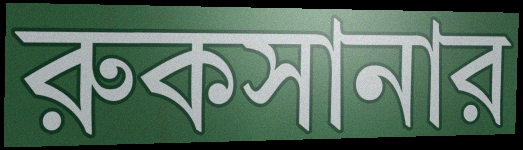
রুকসানার